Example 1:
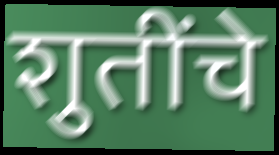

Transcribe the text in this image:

श्रुतींचे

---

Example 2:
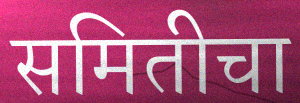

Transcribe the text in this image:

समितीचा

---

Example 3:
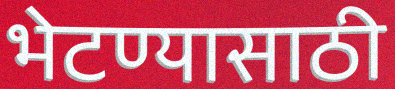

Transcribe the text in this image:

भेटण्यासाठी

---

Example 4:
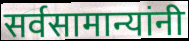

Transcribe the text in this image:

सर्वसामान्यांनी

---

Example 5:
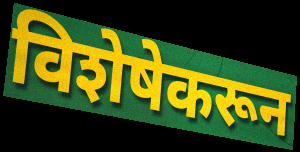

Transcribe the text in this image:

विशेषेकरून